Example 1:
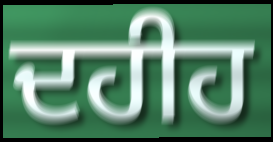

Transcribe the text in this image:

ਦਹੀਹ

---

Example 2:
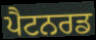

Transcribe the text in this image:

ਪੈਟਨਰਡ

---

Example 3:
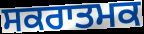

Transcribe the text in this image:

ਸਕਰਾਤਮਕ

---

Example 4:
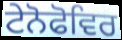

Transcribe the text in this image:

ਟੇਨੋਫੋਵਿਰ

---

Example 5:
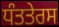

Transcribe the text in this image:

ਧੰਤਤੇਰਸ